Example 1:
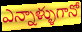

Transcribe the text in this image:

ఎన్నాళ్ళుగానో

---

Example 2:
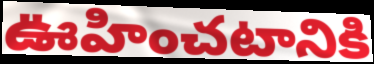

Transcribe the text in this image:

ఊహించటానికి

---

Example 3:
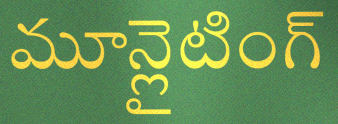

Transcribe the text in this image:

మూన్లైటింగ్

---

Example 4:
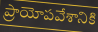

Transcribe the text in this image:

ప్రాయోపవేశానికి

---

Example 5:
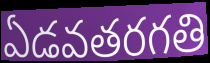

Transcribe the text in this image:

ఏడవతరగతి